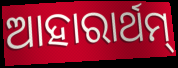
ଆହାରାର୍ଥମ୍